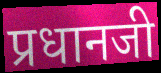
प्रधानजी